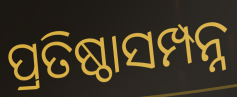
ପ୍ରତିଷ୍ଠାସମ୍ପନ୍ନ